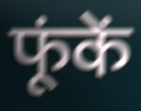
फूंकें